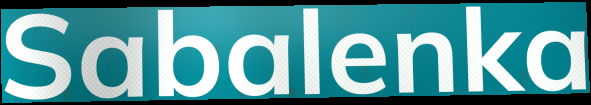
Sabalenka